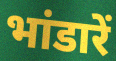
भांडारें